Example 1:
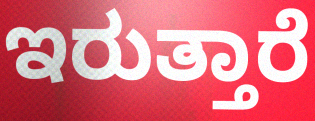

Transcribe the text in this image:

ಇರುತ್ತಾರೆ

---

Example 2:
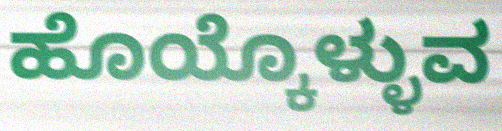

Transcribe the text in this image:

ಹೊಯ್ಕೊಳ್ಳುವ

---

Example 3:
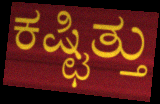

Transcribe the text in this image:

ಕಷ್ಟಿತ್ತು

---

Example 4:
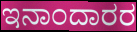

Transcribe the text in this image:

ಇನಾಂದಾರರ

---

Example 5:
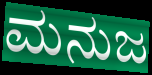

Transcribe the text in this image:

ಮನುಜ